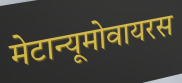
मेटान्यूमोवायरस